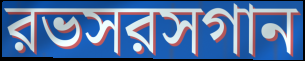
রভসরসগান